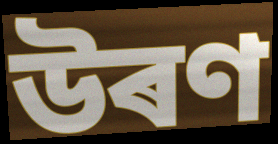
উৰণ